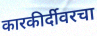
कारकीर्दीवरचा